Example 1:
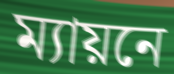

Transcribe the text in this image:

ম্যায়নে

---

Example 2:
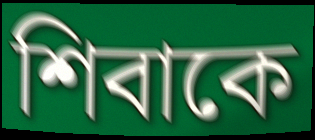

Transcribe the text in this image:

শিবাকে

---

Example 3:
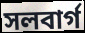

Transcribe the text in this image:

সলবার্গ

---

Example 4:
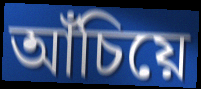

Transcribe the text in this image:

আঁচিয়ে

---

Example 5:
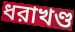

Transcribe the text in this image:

ধরাখণ্ড